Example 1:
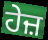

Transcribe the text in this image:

ਹੇਜ਼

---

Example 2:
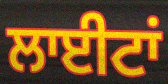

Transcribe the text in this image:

ਲਾਈਟਾਂ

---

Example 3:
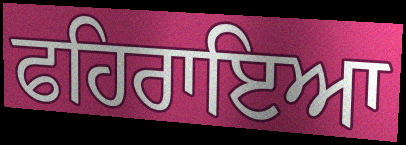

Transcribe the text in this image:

ਫਹਿਰਾਇਆ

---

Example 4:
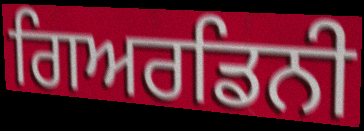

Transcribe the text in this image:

ਗਿਅਰਡਿਨੀ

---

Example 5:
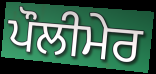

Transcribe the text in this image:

ਪੌਲੀਮੇਰ